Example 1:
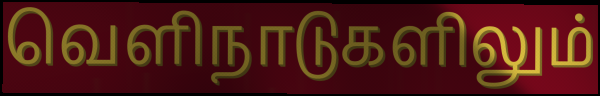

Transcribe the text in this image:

வெளிநாடுகளிலும்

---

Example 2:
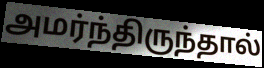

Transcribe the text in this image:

அமர்ந்திருந்தால்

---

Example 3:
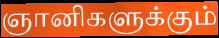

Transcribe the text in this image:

ஞானிகளுக்கும்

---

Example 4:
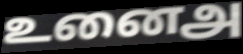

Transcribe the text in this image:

உனைஅ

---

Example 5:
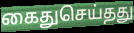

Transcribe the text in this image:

கைதுசெய்தது